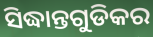
ସିଦ୍ଧାନ୍ତଗୁଡିକର